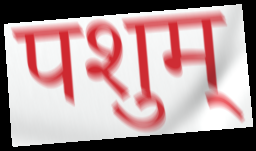
पशुम्